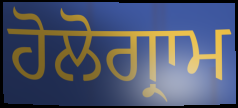
ਹੋਲੋਗ੍ਰਾਮ